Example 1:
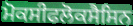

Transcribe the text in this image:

ਮੋਕਸੀਫਲੋਕਸੈਸਿਨ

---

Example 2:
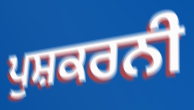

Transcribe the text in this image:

ਪੁਸ਼ਕਰਨੀ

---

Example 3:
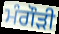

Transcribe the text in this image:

ਮੰਗੌੜੀ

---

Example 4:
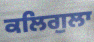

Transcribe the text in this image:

ਕਲਿਗੁਲਾ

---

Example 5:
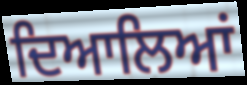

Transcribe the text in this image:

ਦਿਆਲਿਆਂ